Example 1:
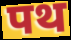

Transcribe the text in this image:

पथ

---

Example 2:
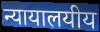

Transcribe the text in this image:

न्यायालयीय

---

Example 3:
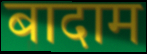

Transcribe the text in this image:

बादाम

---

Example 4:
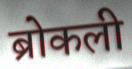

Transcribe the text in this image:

ब्रोकली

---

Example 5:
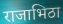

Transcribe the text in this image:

राजाभिठा